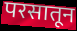
परसातून